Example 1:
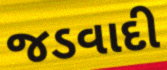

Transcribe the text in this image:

જડવાદી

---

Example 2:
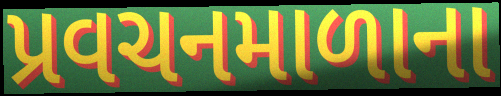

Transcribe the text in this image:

પ્રવચનમાળાના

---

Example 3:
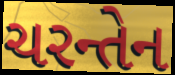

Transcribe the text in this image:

ચરન્તેન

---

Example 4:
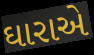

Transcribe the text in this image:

ઘારાએ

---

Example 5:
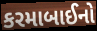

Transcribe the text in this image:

કરમાબાઈનો